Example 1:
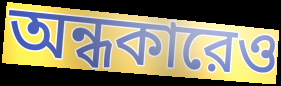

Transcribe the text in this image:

অন্ধকারেও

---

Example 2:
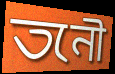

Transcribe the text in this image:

তনৌ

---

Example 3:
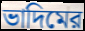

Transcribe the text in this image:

ভাদিমের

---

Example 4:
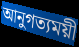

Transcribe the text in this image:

আনুগত্যময়ী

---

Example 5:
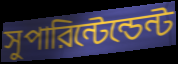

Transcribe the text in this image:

সুপারিন্টেন্ডেন্ট